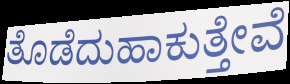
ತೊಡೆದುಹಾಕುತ್ತೇವೆ